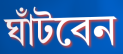
ঘাঁটবেন